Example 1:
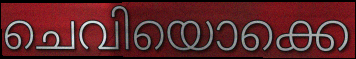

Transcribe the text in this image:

ചെവിയൊക്കെ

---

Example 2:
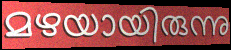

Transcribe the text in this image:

മഴയായിരുന്നു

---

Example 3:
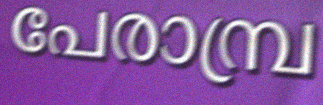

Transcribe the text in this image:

പേരാമ്പ്ര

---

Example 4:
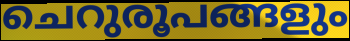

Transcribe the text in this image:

ചെറുരൂപങ്ങളും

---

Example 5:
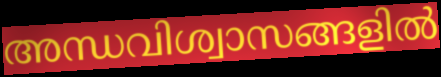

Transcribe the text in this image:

അന്ധവിശ്വാസങ്ങളിൽ